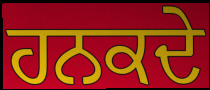
ਹਨਕਦੇ